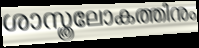
ശാസ്ത്രലോകത്തിനും